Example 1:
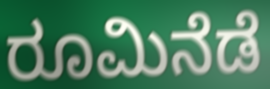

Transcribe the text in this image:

ರೂಮಿನೆಡೆ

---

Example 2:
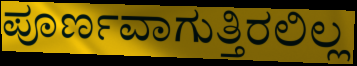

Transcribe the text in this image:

ಪೂರ್ಣವಾಗುತ್ತಿರಲಿಲ್ಲ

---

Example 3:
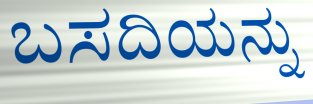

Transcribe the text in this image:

ಬಸದಿಯನ್ನು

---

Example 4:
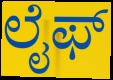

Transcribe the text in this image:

ಲೈಫ್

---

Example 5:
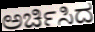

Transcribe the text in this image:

ಅರ್ಚಿಸಿದ